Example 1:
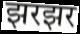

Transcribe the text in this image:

झरझर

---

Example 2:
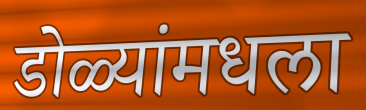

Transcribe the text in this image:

डोळ्यांमधला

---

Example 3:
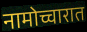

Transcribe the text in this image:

नामोच्चारात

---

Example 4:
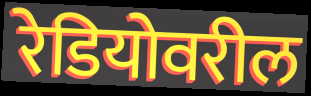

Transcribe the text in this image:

रेडियोवरील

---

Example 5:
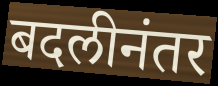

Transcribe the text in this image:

बदलीनंतर